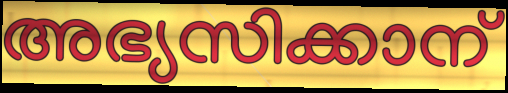
അഭ്യസിക്കാന്